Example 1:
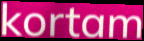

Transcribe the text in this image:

kortam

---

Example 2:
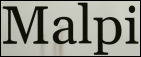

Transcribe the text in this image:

Malpi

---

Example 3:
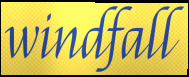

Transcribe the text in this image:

windfall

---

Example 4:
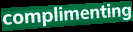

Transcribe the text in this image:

complimenting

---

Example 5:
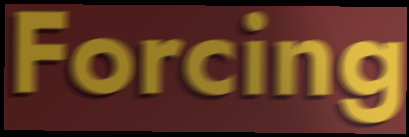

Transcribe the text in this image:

Forcing